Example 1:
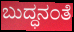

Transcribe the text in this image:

ಬುದ್ಧನಂತೆ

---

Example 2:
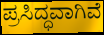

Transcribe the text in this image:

ಪ್ರಸಿದ್ಧವಾಗಿವೆ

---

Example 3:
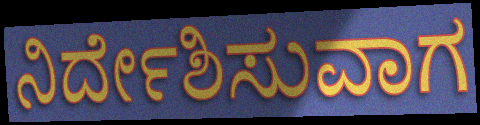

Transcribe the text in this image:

ನಿರ್ದೇಶಿಸುವಾಗ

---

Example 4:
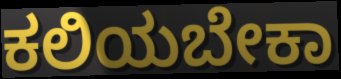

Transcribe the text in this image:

ಕಲಿಯಬೇಕಾ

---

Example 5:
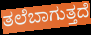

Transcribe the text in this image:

ತಲೆಬಾಗುತ್ತದೆ